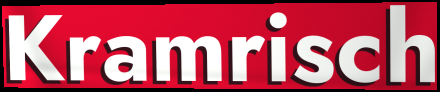
Kramrisch